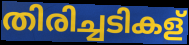
തിരിച്ചടികള്